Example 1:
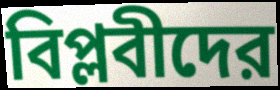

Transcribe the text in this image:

বিপ্লবীদের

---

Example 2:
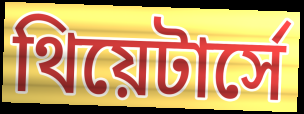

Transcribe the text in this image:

থিয়েটার্সে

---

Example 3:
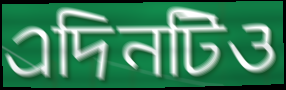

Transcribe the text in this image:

এদিনটিও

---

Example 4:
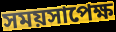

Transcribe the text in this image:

সময়সাপেক্ষ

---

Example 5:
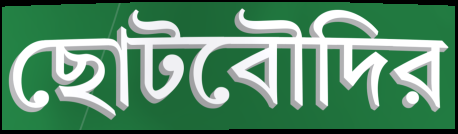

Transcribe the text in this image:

ছোটবৌদির